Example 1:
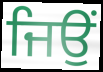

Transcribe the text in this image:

ਜਿਉਂ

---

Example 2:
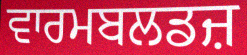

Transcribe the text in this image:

ਵਾਰਮਬਲਡਜ਼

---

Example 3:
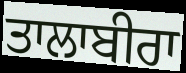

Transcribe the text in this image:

ਤਾਲਾਬੀਰਾ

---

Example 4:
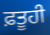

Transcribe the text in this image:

ਫ਼ਤੂਹੀ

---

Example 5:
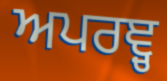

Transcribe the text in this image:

ਅਪਰਞ੍ਚ